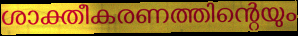
ശാക്തീകരണത്തിന്റെയും